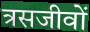
त्रसजीवों